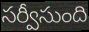
సర్వీసుంది